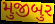
મુજીબુર